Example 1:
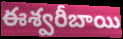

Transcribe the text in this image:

ఈశ్వరీబాయి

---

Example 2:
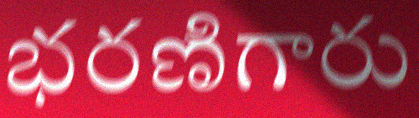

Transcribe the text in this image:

భరణిగారు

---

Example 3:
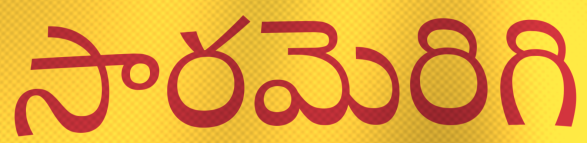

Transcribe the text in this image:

సారమెరిగి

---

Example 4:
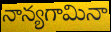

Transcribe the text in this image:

నాన్యగామినా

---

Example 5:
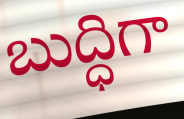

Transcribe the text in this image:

బుద్ధిగా